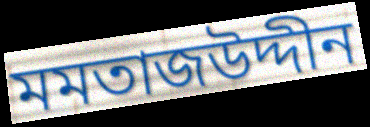
মমতাজউদ্দীন